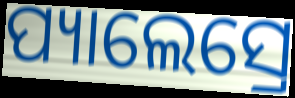
ପ୍ୟାଲେସ୍ରେ